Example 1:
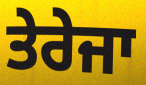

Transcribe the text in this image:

ਤੇਰੇਜਾ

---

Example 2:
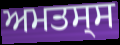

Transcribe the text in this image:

ਅਮਤਸ੍ਸ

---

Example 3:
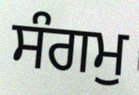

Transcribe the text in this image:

ਸੰਗਮੁ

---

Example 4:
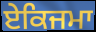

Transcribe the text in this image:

ਏਕਿਜਮਾ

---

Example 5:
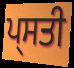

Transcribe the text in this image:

ਪ੍ਸਤੀ